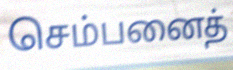
செம்பனைத்